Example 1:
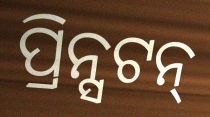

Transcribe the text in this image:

ପ୍ରିନ୍ସଟନ୍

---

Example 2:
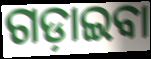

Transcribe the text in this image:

ଗଡ଼ାଇବା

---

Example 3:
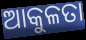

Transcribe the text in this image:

ଆକୁଳତା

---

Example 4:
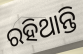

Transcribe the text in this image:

ରହିଥାନ୍ତି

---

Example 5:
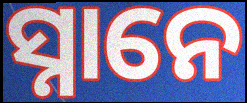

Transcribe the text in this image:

ସ୍ନାନେ